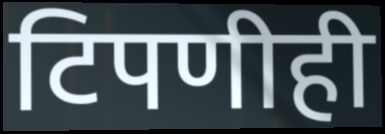
टिपणीही